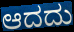
ಆದದು